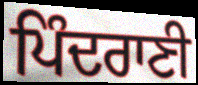
ਪਿੰਦਰਾਣੀ